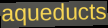
aqueducts